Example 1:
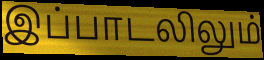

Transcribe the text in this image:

இப்பாடலிலும்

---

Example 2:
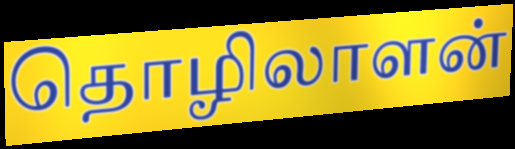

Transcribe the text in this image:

தொழிலாளன்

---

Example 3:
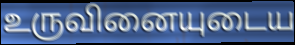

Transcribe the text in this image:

உருவினையுடைய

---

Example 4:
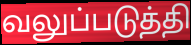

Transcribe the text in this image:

வலுப்படுத்தி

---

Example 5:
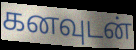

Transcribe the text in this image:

கனவுடன்